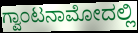
ಗ್ವಾಂಟನಾಮೋದಲ್ಲಿ